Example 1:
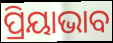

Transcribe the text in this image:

ପ୍ରିୟାଭାବ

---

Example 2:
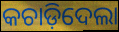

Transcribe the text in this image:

କଚାଡ଼ିଦେଲା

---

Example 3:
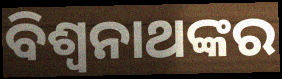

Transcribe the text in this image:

ବିଶ୍ୱନାଥଙ୍କର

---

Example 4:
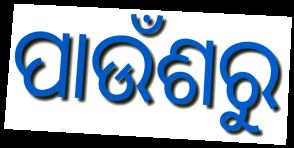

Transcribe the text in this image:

ପାଉଁଶରୁ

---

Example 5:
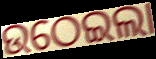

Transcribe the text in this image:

ଉଠେଇଲା